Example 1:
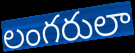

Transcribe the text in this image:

లంగరులా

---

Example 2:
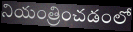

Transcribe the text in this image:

నియంత్రించడంలో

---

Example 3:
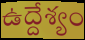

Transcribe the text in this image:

ఉద్దేశ్యం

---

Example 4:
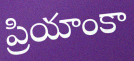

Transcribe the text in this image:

ప్రియాంకా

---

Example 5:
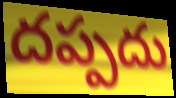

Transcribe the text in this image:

దప్పదు